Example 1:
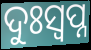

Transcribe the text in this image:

ଦୁଃସ୍ଵପ୍ନ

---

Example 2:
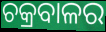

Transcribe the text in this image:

ଚକ୍ରବାଳର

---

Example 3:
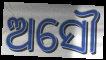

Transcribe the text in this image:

ଅସୌ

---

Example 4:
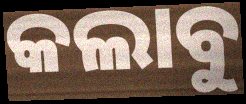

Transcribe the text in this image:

କଲାବୁ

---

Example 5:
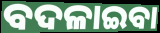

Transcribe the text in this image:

ବଦଳାଇବା